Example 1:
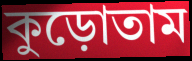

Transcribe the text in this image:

কুড়োতাম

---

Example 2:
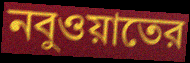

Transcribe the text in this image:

নবুওয়াতের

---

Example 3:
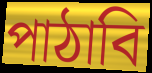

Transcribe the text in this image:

পাঠাবি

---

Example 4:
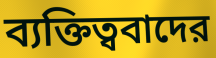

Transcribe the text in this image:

ব্যক্তিত্ববাদের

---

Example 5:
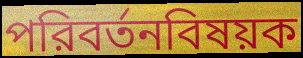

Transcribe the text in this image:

পরিবর্তনবিষয়ক